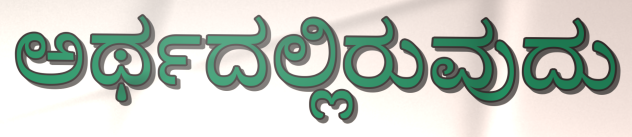
ಅರ್ಥದಲ್ಲಿರುವುದು